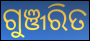
ଗୁଞ୍ଜରିତ